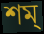
শম্